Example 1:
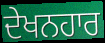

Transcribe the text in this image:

ਦੇਖਨਹਾਰ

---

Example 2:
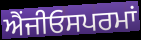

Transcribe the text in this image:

ਐਂਜੀਓਸਪਰਮਾਂ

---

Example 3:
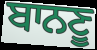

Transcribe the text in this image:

ਬਾਨਣੂ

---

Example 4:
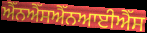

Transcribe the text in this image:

ਐੱਨਐੱਸਐੱਨਆਈਐੱਸ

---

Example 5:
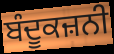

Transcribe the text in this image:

ਬੰਦੂਕਜ਼ਨੀ